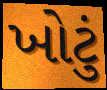
ખોટું